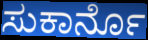
ಸುಕಾರ್ನೊ